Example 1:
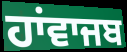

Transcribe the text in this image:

ਹਾਂਵਾਜਬ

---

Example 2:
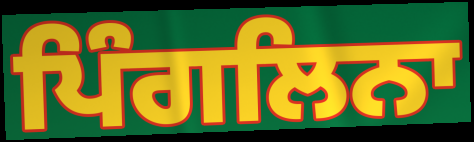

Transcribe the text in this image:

ਪਿੰਗਲਿਨਾ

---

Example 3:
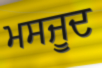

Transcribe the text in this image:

ਮਸਜੂਦ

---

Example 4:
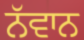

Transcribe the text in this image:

ਨੱਵਾਨ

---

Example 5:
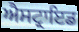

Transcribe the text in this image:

ਐਸਟ੍ਰਾਇਡ